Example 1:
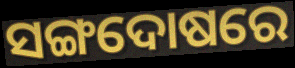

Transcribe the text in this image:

ସଙ୍ଗଦୋଷରେ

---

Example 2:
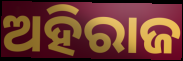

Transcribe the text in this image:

ଅହିରାଜ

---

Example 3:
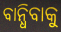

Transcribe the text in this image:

ବାନ୍ଧିବାକୁ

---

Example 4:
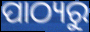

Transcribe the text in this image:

ପାଠ୍ୟରୁ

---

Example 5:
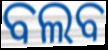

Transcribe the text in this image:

ବଲବ